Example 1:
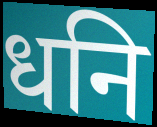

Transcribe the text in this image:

धनि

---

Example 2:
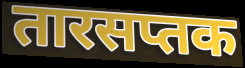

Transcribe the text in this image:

तारसप्तक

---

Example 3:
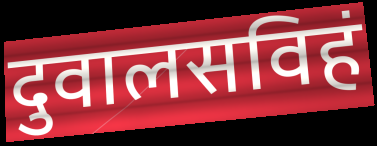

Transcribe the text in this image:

दुवालसविहं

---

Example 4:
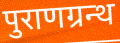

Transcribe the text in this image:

पुराणग्रन्थ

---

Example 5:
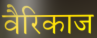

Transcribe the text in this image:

वैरिकाज